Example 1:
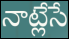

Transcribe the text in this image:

నాట్లేసే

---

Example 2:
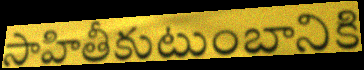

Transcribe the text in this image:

సాహితీకుటుంబానికి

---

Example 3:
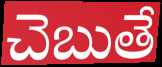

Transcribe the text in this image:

చెబుతే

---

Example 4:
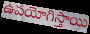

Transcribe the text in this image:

ఉపయోగిస్తాయి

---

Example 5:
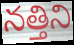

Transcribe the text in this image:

నత్తిని